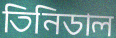
তিনিডাল